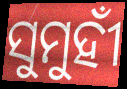
ସୁମୁହୀଁ